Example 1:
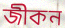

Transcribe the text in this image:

জীকন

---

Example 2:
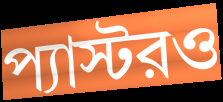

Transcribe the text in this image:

প্যাস্টরও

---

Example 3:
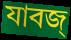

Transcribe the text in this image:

যাবজ্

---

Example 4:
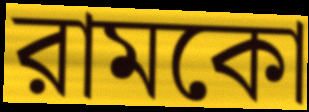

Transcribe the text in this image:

রামকো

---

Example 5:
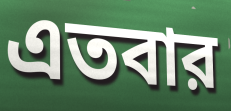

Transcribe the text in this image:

এতবার